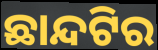
ଛାନ୍ଦଟିର